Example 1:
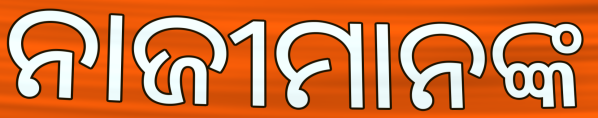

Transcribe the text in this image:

ନାଜୀମାନଙ୍କ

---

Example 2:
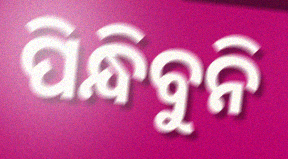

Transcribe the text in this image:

ପିନ୍ଧିବୁନି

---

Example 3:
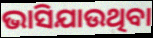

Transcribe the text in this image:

ଭାସିଯାଉଥିବା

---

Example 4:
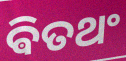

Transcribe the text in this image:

ଵିତଥଂ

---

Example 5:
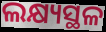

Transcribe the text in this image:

ଲକ୍ଷ୍ୟସ୍ଥଳ